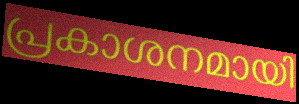
പ്രകാശനമായി